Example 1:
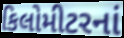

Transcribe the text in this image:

કિલોમીટરનાં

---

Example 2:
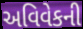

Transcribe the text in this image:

અવિવેકની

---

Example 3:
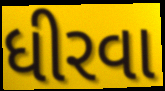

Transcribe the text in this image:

ધીરવા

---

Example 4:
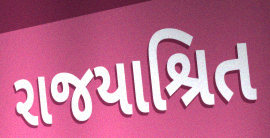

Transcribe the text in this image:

રાજયાશ્રિત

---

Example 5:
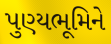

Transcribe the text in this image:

પુણ્યભૂમિને